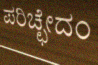
ಪರಿಚ್ಛೇದಂ